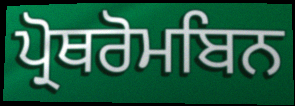
ਪ੍ਰੋਥਰੋਮਬਿਨ